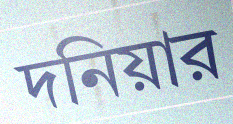
দনিয়ার